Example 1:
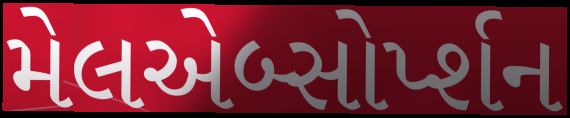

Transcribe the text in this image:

મેલએબ્સોર્પ્શન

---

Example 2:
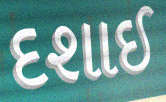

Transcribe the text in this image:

દશાઈ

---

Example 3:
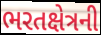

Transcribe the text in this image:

ભરતક્ષેત્રની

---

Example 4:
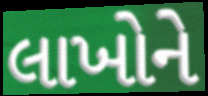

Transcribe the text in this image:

લાખોને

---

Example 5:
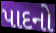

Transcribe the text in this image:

પાદનો